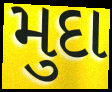
મુદા